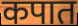
कपात